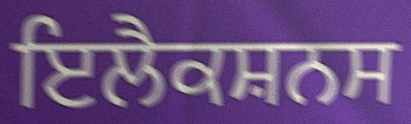
ਇਲੈਕਸ਼ਨਸ